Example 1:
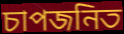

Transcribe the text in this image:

চাপজনিত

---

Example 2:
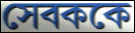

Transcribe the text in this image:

সেবককে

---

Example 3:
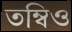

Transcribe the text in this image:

তম্বিও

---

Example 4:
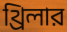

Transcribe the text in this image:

থ্রিলার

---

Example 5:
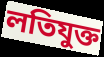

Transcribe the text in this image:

লতিযুক্ত